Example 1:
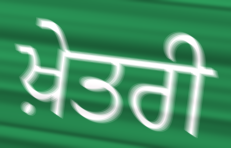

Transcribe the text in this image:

ਖ਼ੇਤਰੀ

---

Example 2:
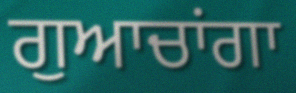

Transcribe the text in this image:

ਗੁਆਚਾਂਗਾ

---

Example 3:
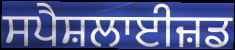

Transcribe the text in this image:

ਸਪੈਸ਼ਲਾਈਜ਼ਡ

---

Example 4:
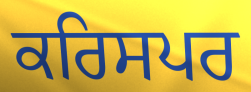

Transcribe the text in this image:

ਕਰਿਸਪਰ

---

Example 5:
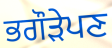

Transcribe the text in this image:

ਭਗੌੜੇਪਣ